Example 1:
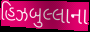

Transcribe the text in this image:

હિઝબુલ્લાના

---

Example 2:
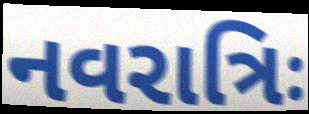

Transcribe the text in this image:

નવરાત્રિઃ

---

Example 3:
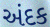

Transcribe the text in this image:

અંદક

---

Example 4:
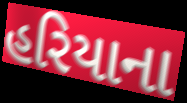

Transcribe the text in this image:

હરિયાના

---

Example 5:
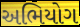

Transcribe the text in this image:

અભિયોગ